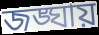
জঙ্ঘায়